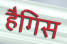
हैगिस